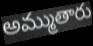
అమ్ముతారు